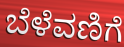
ಬೆಳೆವಣಿಗೆ